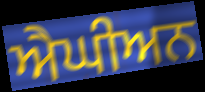
ਐਘੀਅਨ